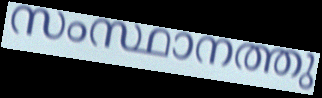
സംസ്ഥാനത്തു